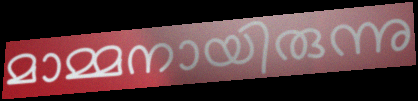
മാമ്മനായിരുന്നു